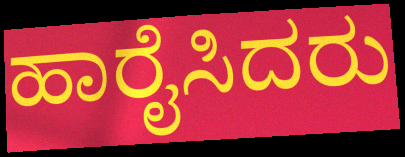
ಹಾರೈಸಿದರು